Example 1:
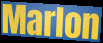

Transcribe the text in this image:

Marlon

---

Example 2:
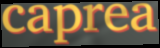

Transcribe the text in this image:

caprea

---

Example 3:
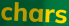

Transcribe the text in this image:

chars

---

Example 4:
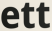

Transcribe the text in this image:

ett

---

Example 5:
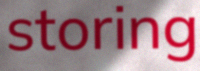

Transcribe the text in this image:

storing